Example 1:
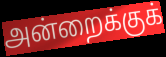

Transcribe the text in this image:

அன்றைக்குக்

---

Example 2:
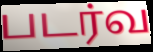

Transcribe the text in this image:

படர்வ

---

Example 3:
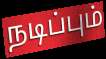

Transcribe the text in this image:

நடிப்பும்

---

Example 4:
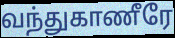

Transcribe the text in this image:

வந்துகாணீரே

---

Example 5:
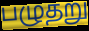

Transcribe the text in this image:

பழுதறு